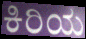
ಕಿರಿಯ